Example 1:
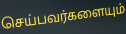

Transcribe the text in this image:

செய்பவர்களையும்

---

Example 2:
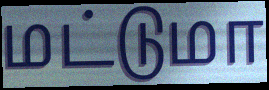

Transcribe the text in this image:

மட்டுமா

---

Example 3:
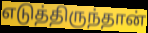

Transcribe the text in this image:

எடுத்திருந்தான்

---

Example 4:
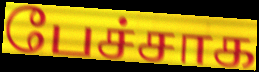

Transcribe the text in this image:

பேச்சாக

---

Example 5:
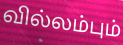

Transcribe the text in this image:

வில்லம்பும்